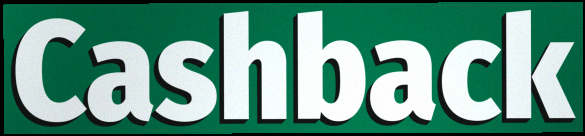
Cashback